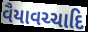
વૈયાવચ્ચાદિ